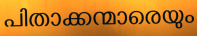
പിതാക്കന്മാരെയും